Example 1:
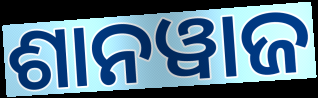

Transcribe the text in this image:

ଶାନୱାଜ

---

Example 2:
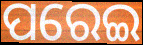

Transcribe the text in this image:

ପରେଇ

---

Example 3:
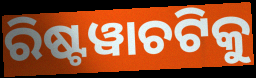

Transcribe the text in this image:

ରିଷ୍ଟୱାଚଟିକୁ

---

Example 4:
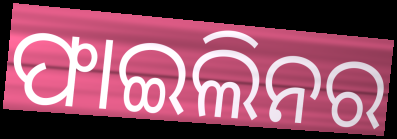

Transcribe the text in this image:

ଫାଇଲିନର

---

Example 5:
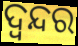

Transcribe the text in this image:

ଦ୍ବନ୍ଦର